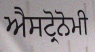
ਐਸਟ੍ਰੋਨੋਮੀ